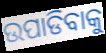
ଉପାଡିବାକୁ